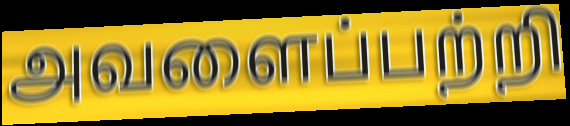
அவளைப்பற்றி